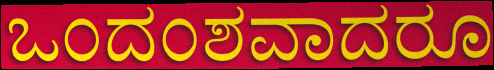
ಒಂದಂಶವಾದರೂ